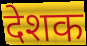
देशक